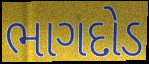
ભાગદોડ